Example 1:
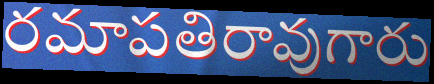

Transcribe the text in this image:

రమాపతిరావుగారు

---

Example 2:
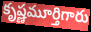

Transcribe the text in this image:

కృష్ణమూర్తిగారు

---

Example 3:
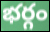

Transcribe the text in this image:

భర్గం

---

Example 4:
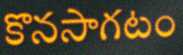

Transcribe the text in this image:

కొనసాగటం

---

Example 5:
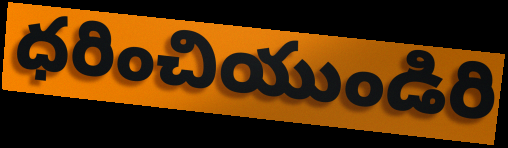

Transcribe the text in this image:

ధరించియుండిరి